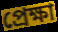
প্ৰেক্ষা